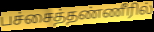
பச்சைத்தண்ணீரில்